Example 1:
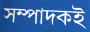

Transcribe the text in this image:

সম্পাদকই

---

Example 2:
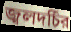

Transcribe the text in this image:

জ্বলদর্চির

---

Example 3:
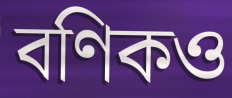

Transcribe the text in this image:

বণিকও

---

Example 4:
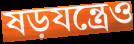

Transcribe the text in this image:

ষড়যন্ত্রেও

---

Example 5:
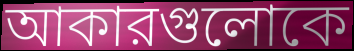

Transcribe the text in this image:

আকারগুলোকে